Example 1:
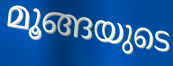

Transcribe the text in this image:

മൂങ്ങയുടെ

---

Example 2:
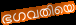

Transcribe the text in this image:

ഭഗവതിയെ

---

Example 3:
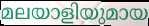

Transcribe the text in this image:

മലയാളിയുമായ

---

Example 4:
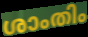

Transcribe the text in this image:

ശാംതിം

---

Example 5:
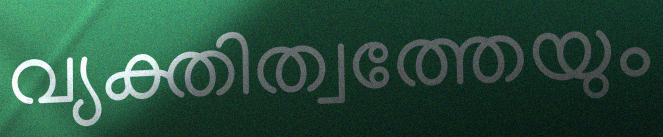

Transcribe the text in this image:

വ്യക്തിത്വത്തേയും